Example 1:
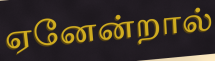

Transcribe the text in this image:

ஏனேன்றால்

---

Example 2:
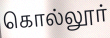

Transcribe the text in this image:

கொல்லூர்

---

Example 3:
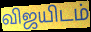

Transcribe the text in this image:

விஜயிடம்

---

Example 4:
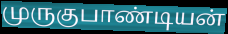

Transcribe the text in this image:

முருகுபாண்டியன்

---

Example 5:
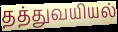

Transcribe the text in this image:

தத்துவயியல்